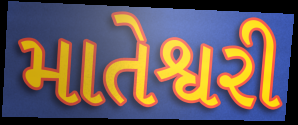
માતેશ્વરી